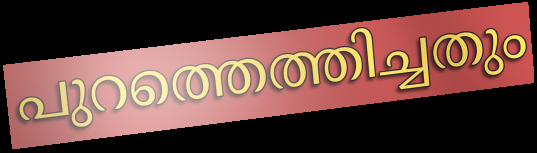
പുറത്തെത്തിച്ചതും